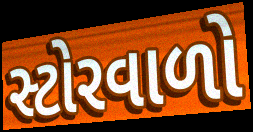
સ્ટોરવાળો